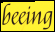
beeing